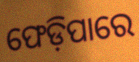
ଫେଡ଼ିପାରେ